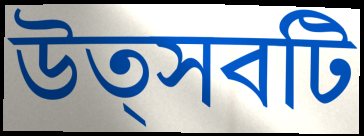
উত্সবটি